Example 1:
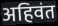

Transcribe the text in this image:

अहिवंत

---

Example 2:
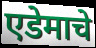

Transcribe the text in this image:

एडेमाचे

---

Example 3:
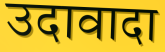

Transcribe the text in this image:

उदावादा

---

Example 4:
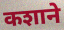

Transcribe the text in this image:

कशाने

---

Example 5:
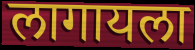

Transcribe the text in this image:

लागायला